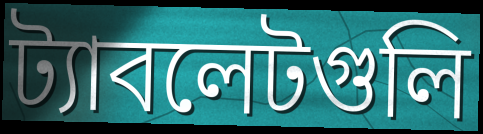
ট্যাবলেটগুলি